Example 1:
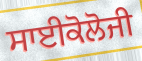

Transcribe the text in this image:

ਸਾਈਕੋਲੋਜੀ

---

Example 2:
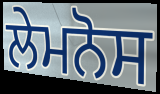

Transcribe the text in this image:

ਲੇਮਨੋਸ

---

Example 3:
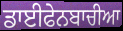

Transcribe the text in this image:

ਡਾਈਫੇਨਬਾਚੀਆ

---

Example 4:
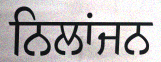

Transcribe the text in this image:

ਨਿਲਾਂਜਨ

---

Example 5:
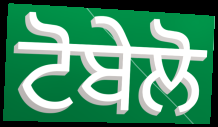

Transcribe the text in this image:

ਟੋਬੇਲੋ